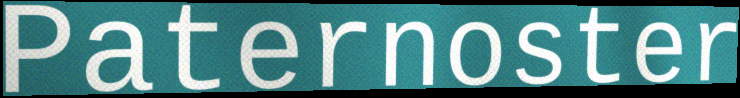
Paternoster